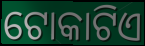
ଟୋକାଟିଏ